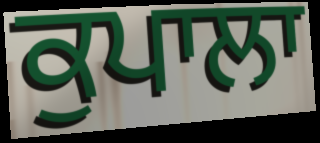
ਕੁਪਾਲਾ